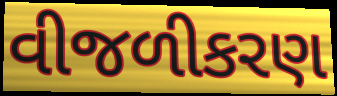
વીજળીકરણ